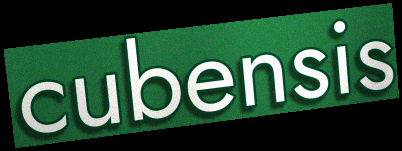
cubensis